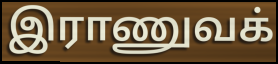
இராணுவக்